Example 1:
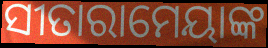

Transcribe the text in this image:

ସୀତାରାମେୟାଙ୍କ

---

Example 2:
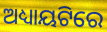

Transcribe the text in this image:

ଅଧ୍ୟାୟଟିରେ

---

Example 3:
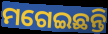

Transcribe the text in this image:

ମଗେଇଛନ୍ତି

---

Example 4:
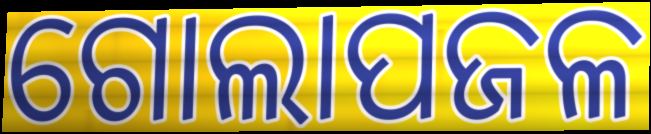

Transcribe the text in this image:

ଗୋଲାପଜଳ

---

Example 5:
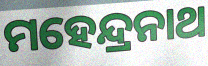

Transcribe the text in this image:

ମହେନ୍ଦ୍ରନାଥ